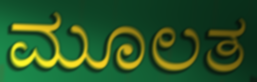
ಮೂಲತ